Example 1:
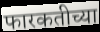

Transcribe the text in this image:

फारकतीच्या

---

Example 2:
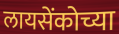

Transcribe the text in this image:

लायसेंकोच्या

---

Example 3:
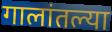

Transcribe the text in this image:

गालांतल्या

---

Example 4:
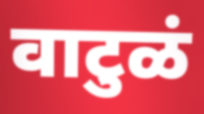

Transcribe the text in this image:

वाटुळं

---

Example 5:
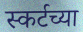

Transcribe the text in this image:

स्कर्टच्या